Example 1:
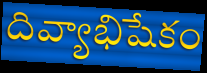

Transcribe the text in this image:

దివ్యాభిషేకం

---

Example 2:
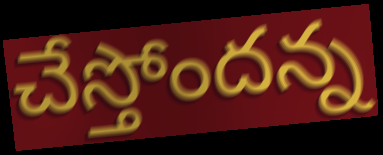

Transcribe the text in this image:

చేస్తోందన్న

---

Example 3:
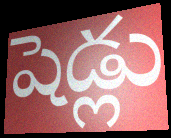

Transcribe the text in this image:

షెడ్లు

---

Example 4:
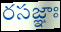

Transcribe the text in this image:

రసజ్ఞాః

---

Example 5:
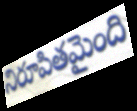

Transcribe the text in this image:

నిరూపితమైంది